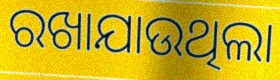
ରଖାଯାଉଥିଲା